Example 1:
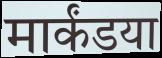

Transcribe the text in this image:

मार्कंडया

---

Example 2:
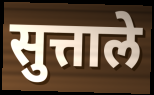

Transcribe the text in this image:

सुत्ताले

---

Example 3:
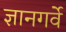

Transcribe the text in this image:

ज्ञानगर्वे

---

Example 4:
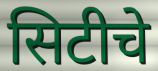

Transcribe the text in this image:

सिटीचे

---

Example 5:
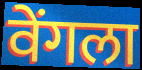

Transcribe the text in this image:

वेंगला